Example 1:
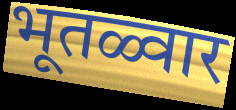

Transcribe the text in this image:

भूतळ्वार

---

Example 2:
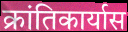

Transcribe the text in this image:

क्रांतिकार्यास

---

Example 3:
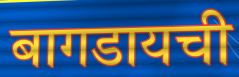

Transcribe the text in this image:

बागडायची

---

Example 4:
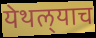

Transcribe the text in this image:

येथल्याच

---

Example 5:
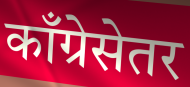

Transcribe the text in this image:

काँग्रेसेतर